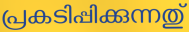
പ്രകടിപ്പിക്കുന്നതു്